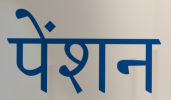
पेंशन